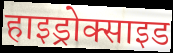
हाइड्रोक्साइड